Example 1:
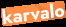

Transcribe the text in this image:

karvalo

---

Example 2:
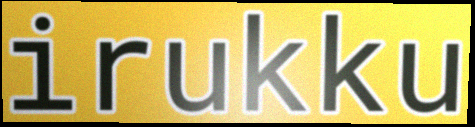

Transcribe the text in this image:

irukku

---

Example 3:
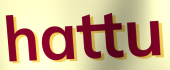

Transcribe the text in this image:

hattu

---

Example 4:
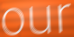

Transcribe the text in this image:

our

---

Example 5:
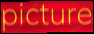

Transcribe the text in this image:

picture